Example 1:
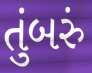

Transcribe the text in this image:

તુંબરું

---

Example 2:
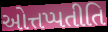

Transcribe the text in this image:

ઓત્તપ્પતીતિ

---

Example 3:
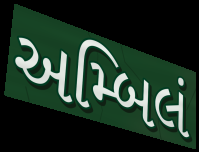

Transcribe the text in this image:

અમ્બિલં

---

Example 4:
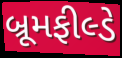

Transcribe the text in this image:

બ્રૂમફીલ્ડે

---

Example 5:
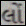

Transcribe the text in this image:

લોં